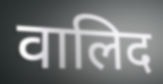
वालिद